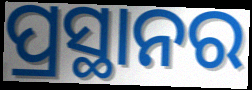
ପ୍ରସ୍ଥାନର